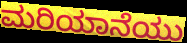
ಮರಿಯಾನೆಯು